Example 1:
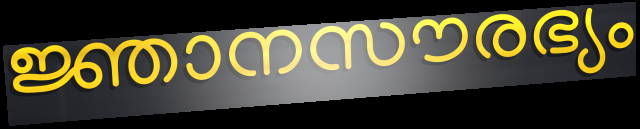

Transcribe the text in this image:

ജ്ഞാനസൗരഭ്യം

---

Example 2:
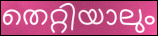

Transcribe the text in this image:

തെറ്റിയാലും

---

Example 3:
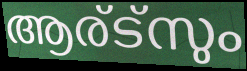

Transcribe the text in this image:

ആര്ട്സും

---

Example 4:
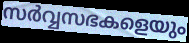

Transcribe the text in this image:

സർവ്വസഭകളെയും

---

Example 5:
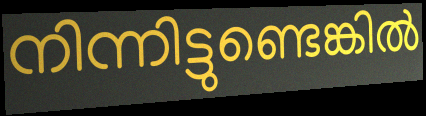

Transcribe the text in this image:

നിന്നിട്ടുണ്ടെങ്കിൽ